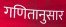
गणितानुसार